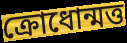
ক্রোধোন্মত্ত